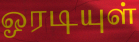
ஓரடியுள்